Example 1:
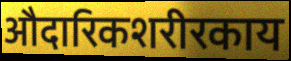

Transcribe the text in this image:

औदारिकशरीरकाय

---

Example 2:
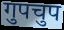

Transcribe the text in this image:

गुपचुप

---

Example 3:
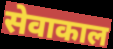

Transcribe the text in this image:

सेवाकाल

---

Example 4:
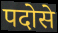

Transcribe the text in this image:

पदोसे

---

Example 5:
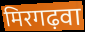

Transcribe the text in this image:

मिरगढ़वा